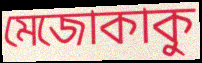
মেজোকাকু